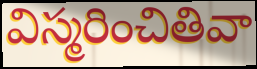
విస్మరించితివా